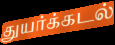
துயர்க்கடல்